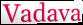
Vadava